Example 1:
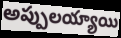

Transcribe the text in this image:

అప్పులయ్యాయి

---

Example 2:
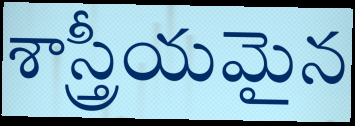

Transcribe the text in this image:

శాస్త్రీయమైన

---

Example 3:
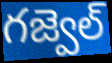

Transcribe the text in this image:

గజ్వెల్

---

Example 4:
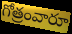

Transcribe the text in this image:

గోత్రంవారూ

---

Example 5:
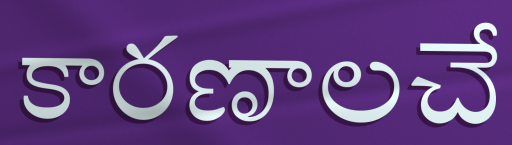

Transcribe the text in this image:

కారణాలచే